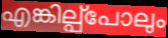
എങ്കില്പ്പോലും